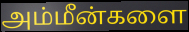
அம்மீன்களை